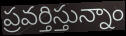
ప్రవర్తిస్తున్నాం